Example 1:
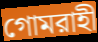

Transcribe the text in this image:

গোমরাহী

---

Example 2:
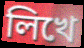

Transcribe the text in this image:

লিখে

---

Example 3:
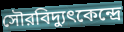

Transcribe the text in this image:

সৌরবিদ্যুৎকেন্দ্রে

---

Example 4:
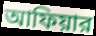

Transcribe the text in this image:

আফিয়ার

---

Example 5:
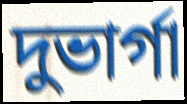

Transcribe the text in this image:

দুভার্গা